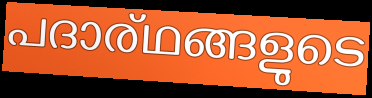
പദാര്ഥങ്ങളുടെ